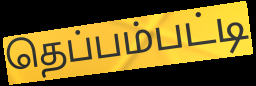
தெப்பம்பட்டி